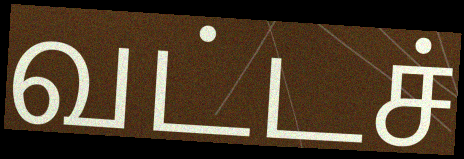
வட்டச்